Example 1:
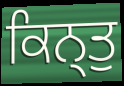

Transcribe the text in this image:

ਕਿਨ੍ਤੁ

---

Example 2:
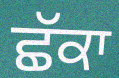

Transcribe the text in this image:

ਛੱਕਾ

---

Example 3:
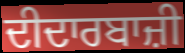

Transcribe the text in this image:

ਦੀਦਾਰਬਾਜ਼ੀ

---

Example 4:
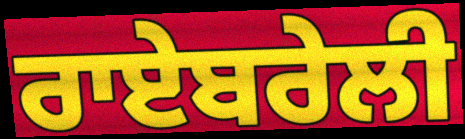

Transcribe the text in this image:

ਰਾਏਬਰੇਲੀ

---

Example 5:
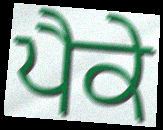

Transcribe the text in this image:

ਪੈਕੇ